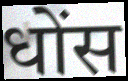
धोंस